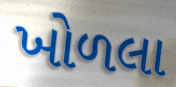
ખોળલા